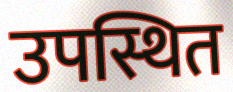
उपस्थित